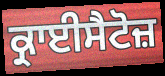
ਕ੍ਰਾਈਸੈਟੋਜ਼